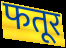
फतूर